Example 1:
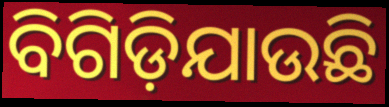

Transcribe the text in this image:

ବିଗିଡ଼ିଯାଉଛି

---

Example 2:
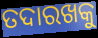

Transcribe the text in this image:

ତଦାରଖକୁ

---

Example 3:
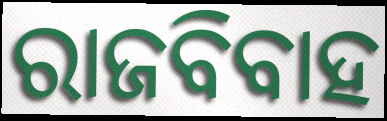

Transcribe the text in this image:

ରାଜବିବାହ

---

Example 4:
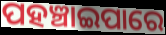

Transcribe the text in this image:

ପହଞ୍ଚାଇପାରେ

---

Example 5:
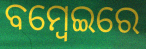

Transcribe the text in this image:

ବମ୍ବେଇରେ